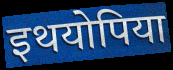
इथयोपिया